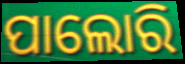
ପାଲୋରି